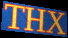
THX